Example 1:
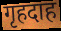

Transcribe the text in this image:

गृहदाह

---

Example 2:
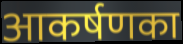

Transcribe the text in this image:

आकर्षणका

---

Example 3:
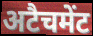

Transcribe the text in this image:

अटैचमेंट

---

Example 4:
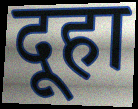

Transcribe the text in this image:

दूहा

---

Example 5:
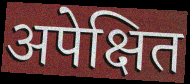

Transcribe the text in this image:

अपेक्षित